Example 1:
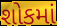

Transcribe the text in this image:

શોકમાં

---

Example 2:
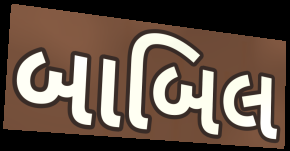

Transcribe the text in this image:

બાબિલ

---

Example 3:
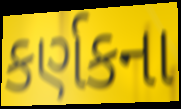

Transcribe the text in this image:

કર્ણકના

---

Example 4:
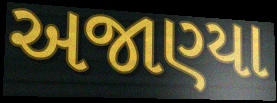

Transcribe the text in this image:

અજાણ્યા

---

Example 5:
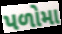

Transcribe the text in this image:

પળોમા